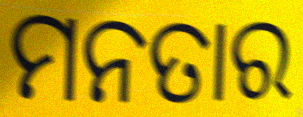
ମନତାର